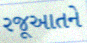
રજૂઆતને